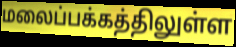
மலைப்பக்கத்திலுள்ள